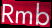
Rmb